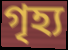
গৃহ্য